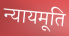
न्यायमूति